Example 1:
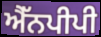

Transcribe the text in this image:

ਐੱਨਪੀਪੀ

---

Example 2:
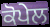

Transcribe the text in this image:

ਕੋਪੇਲ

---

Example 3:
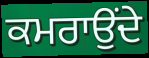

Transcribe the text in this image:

ਕਮਰਾਉਂਦੇ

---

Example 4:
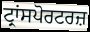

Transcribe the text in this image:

ਟ੍ਰਾਂਸਪੋਰਟਰਜ਼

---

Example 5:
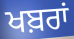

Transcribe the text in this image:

ਖਬ਼ਰਾਂ